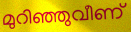
മുറിഞ്ഞുവീണ്